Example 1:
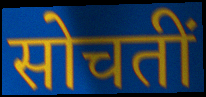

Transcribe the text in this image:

सोचतीं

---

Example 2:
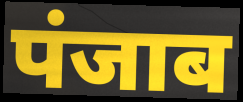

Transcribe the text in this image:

पंजाब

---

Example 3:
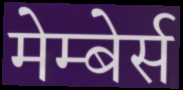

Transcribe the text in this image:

मेम्बेर्स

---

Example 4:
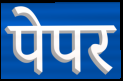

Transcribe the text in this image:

पेपर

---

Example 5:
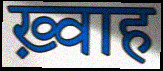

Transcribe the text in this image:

ख़्वाह